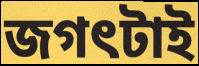
জগৎটাই